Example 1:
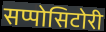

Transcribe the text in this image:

सप्पोसिटोरी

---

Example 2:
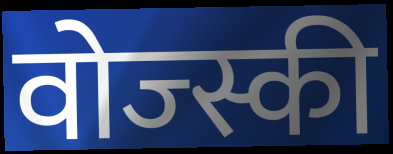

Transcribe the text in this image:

वोज्स्की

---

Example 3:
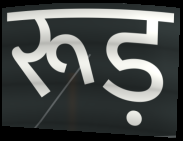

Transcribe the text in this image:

रूड़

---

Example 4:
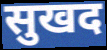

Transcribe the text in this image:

सुखद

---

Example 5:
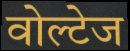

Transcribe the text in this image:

वोल्टेज